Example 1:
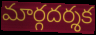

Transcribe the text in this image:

మార్గదర్శక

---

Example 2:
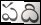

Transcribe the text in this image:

పది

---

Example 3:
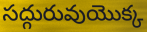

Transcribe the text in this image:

సద్గురువుయొక్క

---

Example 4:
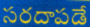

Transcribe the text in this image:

సరదాపడే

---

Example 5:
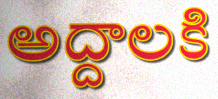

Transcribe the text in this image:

అద్దాలకి